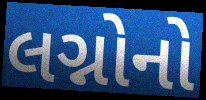
લગ્નોનો